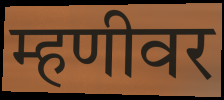
म्हणीवर